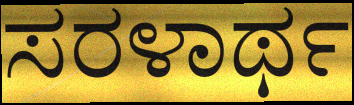
ಸರಳಾರ್ಥ